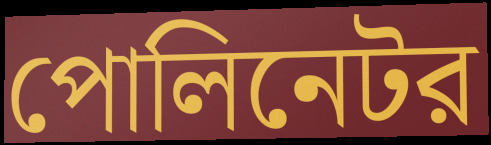
পোলিনেটর